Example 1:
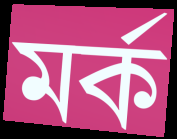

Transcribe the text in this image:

মর্ক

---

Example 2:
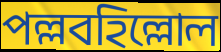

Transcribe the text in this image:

পল্লবহিল্লোল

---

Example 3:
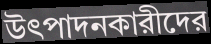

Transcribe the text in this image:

উৎপাদনকারীদের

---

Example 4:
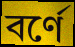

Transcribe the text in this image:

বর্ণে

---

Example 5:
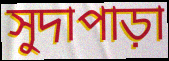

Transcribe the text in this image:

সুদাপাড়া